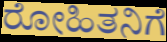
ರೋಹಿತನಿಗೆ